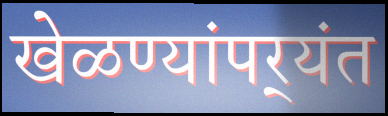
खेळण्यांपर्यंत